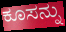
ಕೂಸನ್ನು